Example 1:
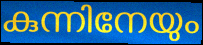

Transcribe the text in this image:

കുന്നിനേയും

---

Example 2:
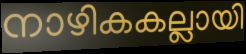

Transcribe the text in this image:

നാഴികകല്ലായി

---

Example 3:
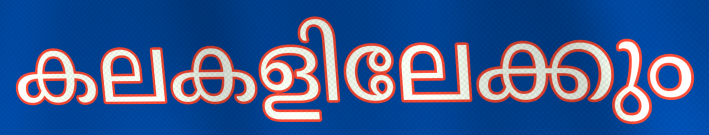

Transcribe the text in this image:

കലകളിലേക്കും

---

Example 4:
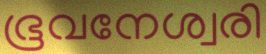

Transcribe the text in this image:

ഭൂവനേശ്വരി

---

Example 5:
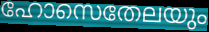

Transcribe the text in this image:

ഹോസെതേലയും